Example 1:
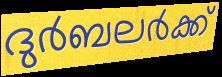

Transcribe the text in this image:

ദുർബലർക്ക്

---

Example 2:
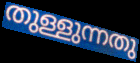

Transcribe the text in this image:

തുള്ളുന്നതു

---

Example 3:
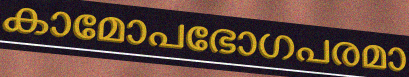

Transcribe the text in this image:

കാമോപഭോഗപരമാ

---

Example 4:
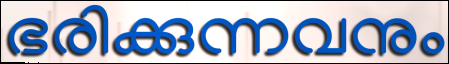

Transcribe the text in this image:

ഭരിക്കുന്നവനും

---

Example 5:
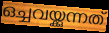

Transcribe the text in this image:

ഒച്ചവയ്ക്കുന്നത്